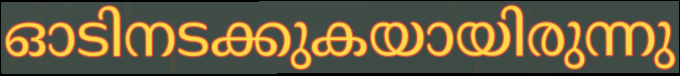
ഓടിനടക്കുകയായിരുന്നു